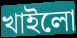
খাইলো